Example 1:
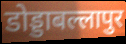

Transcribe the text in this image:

डोड्डाबल्लापुर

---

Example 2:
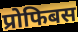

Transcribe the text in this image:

प्रोफिबस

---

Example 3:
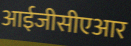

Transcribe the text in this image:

आईजीसीएआर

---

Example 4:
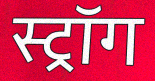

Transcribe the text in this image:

स्ट्रॉग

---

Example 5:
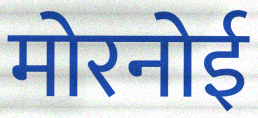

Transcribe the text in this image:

मोरनोई